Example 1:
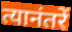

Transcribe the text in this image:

त्यानंतरें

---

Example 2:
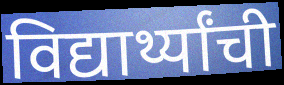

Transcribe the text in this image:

विद्यार्थ्‍यांची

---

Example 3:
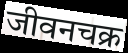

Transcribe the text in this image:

जीवनचक्र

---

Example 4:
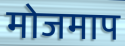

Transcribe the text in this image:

मोजमाप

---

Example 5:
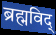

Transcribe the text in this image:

ब्रह्मविद्